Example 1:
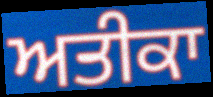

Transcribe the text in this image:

ਅਤੀਕਾ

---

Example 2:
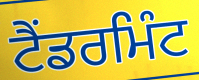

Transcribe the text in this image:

ਟੈਂਡਰਮਿੰਟ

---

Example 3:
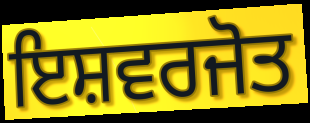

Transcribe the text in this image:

ਇਸ਼ਵਰਜੋਤ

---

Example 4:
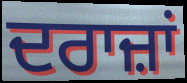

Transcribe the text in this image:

ਦਰਾਜ਼ਾਂ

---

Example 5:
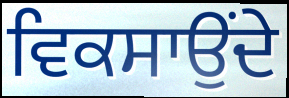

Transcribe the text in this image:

ਵਿਕਸਾਉਂਦੇ